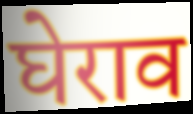
घेराव